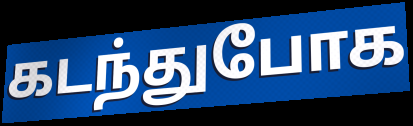
கடந்துபோக